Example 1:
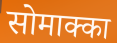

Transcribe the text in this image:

सोमाक्का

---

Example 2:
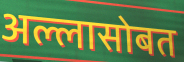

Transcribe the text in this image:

अल्लासोबत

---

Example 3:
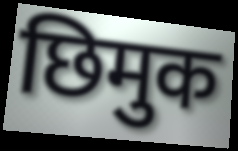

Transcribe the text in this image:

छिमुक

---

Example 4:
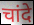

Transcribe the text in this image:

चांदे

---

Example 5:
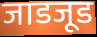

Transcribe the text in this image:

जाडजूड